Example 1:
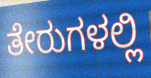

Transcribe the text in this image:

ತೇರುಗಳಲ್ಲಿ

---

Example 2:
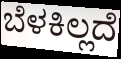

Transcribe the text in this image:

ಬೆಳಕಿಲ್ಲದೆ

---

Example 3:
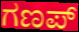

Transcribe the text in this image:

ಗಣಪ್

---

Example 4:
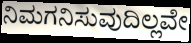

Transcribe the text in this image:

ನಿಮಗನಿಸುವುದಿಲ್ಲವೇ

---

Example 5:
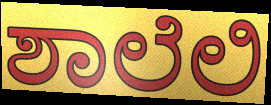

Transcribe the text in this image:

ಶಾಲೆಲಿ